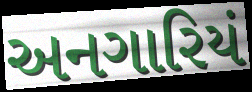
અનગારિયં